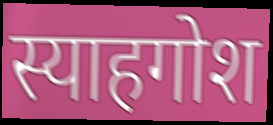
स्याहगोश